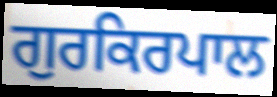
ਗੁਰਕਿਰਪਾਲ